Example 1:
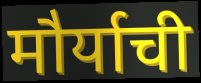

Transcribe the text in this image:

मौर्याची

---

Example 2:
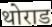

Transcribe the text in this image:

थोराड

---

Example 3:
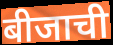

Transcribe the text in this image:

बीजाची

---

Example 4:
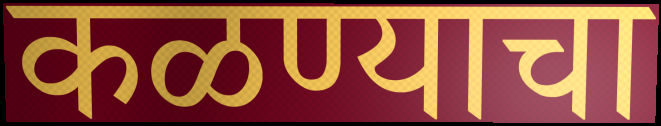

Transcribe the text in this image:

कळण्याचा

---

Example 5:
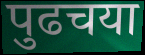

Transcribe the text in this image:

पुढचया